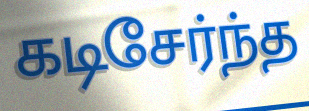
கடிசேர்ந்த